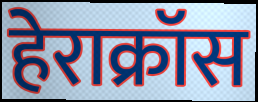
हेराक्रॉस